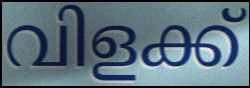
വിളക്ക്